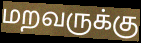
மறவருக்கு